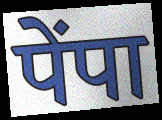
पेंपा